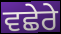
ਵਛੇਰੇ